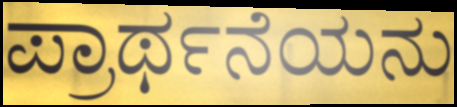
ಪ್ರಾರ್ಥನೆಯನು